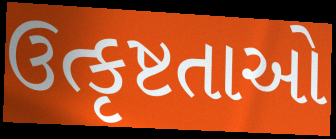
ઉત્કૃષ્ટતાઓ